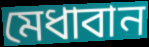
মেধাবান